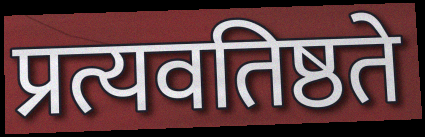
प्रत्यवतिष्ठते